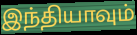
இந்தியாவும்